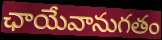
ఛాయేవానుగతం